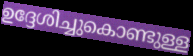
ഉദ്ദേശിച്ചുകൊണ്ടുള്ള